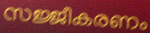
സജ്ജീകരണം